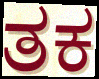
ತಕ